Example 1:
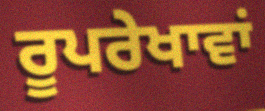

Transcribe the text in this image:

ਰੂਪਰੇਖਾਵਾਂ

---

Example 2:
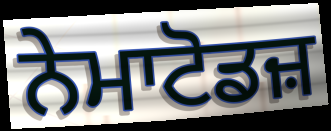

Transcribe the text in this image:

ਨੇਮਾਟੋਡਜ਼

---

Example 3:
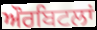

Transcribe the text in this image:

ਔਰਬਿਟਲਾਂ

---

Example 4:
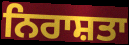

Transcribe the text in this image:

ਨਿਰਾਸ਼ਤਾ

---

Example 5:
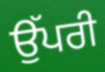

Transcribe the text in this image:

ਉੱਪਰੀ